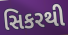
સિકરથી